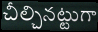
చీల్చినట్టుగా